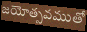
జయోత్సవముతో